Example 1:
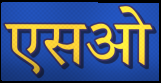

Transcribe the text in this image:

एसओ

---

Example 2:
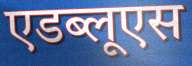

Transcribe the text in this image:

एडब्लूएस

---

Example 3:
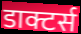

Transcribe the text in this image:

डाक्टर्स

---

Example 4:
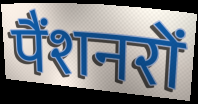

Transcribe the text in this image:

पैंशनरों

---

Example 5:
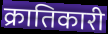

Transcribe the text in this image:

क्रातिकारी